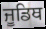
ਜੂਡਿਥ